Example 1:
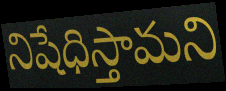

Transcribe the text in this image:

నిషేధిస్తామని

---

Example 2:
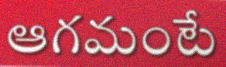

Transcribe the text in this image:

ఆగమంటే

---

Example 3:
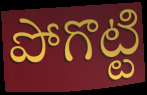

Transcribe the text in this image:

పోగొట్టి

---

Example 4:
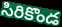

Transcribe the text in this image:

సిరికొండ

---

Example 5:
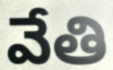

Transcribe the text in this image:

వేతి